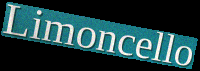
Limoncello